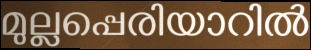
മുല്ലപ്പെരിയാറിൽ